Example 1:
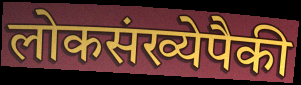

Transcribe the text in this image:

लोकसंख्येपैकी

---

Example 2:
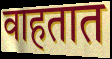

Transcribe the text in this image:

वाहतात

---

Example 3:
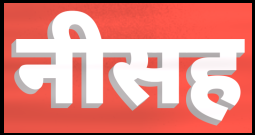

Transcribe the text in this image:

नीसह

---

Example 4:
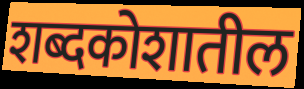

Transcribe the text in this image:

शब्दकोशातील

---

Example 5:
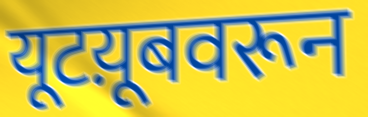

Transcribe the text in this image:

यूटय़ूबवरून